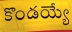
కొండయ్యే